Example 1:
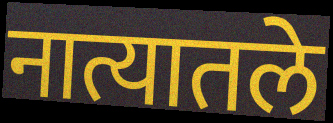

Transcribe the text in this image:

नात्यातले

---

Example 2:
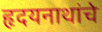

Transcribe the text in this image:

हृदयनाथांचे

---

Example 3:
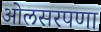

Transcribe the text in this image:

ओलसरपणा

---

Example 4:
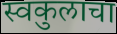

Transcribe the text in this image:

स्वकुलाचा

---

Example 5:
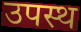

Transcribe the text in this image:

उपस्थ